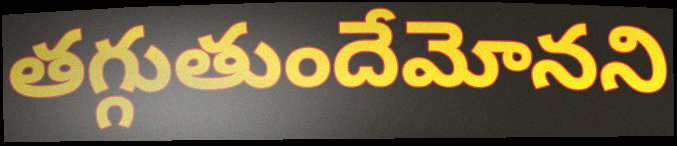
తగ్గుతుందేమోనని